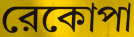
রেকোপা